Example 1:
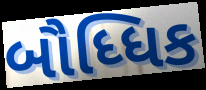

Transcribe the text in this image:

બૌધ્ધિક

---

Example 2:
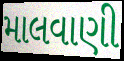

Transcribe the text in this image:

માલવાણી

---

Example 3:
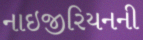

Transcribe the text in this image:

નાઇજીરિયનની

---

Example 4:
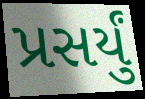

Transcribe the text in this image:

પ્રસર્યું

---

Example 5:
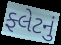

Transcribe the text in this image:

ફ્લેટનું